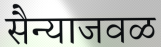
सैन्याजवळ